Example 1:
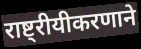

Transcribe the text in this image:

राष्ट्रीयीकरणाने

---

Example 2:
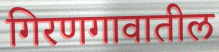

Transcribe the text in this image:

गिरणगावातील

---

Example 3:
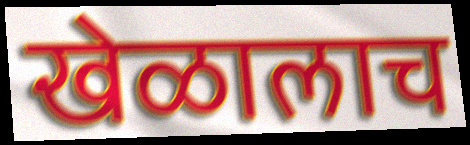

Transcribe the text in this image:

खेळालाच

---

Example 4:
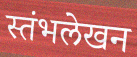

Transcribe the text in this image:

स्तंभलेखन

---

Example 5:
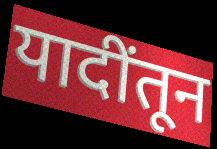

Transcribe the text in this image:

यादींतून